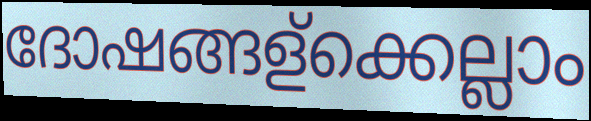
ദോഷങ്ങള്ക്കെല്ലാം